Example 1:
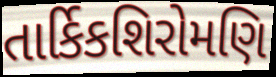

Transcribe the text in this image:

તાર્કિકશિરોમણિ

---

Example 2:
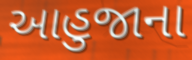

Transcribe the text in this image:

આહુજાના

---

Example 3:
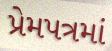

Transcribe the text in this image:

પ્રેમપત્રમાં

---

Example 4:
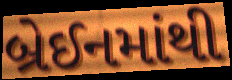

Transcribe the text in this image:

બ્રેઈનમાંથી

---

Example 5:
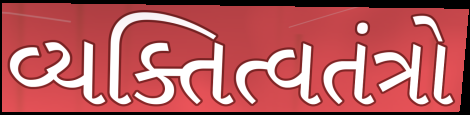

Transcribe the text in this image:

વ્યક્તિત્વતંત્રો